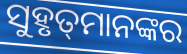
ସୁହୃତ୍‌ମାନଙ୍କର